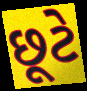
છૂટે